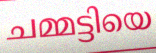
ചമ്മട്ടിയെ